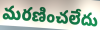
మరణించలేదు